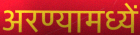
अरण्यामध्यें